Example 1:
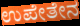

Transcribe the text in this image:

ಉಪೇತೇನ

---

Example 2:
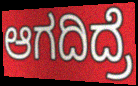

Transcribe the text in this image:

ಆಗದಿದ್ರೆ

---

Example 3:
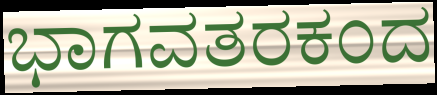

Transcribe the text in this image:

ಭಾಗವತರಕಂದ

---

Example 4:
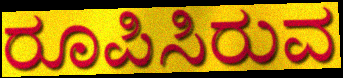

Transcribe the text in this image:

ರೂಪಿಸಿರುವ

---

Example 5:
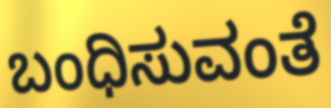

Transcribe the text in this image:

ಬಂಧಿಸುವಂತೆ